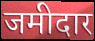
जमीदार